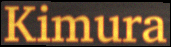
Kimura